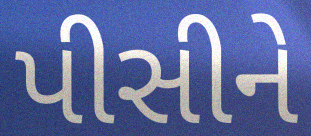
પીસીને